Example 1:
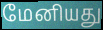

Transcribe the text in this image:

மேனியது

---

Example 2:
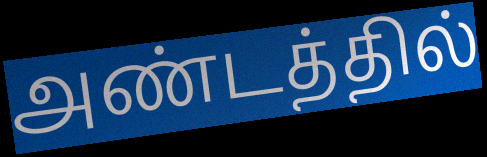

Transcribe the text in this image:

அண்டத்தில்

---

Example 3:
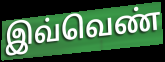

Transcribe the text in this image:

இவ்வெண்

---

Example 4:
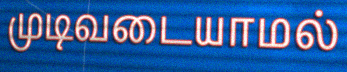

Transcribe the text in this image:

முடிவடையாமல்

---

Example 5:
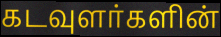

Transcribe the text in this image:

கடவுளர்களின்